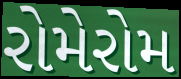
રોમેરોમ